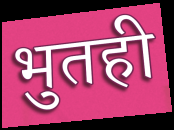
भुतही